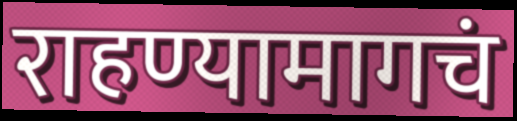
राहण्यामागचं